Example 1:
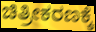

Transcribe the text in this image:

ಚಿತ್ರೀಕರಣಕ್ಕೆ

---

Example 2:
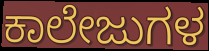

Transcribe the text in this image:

ಕಾಲೇಜುಗಳ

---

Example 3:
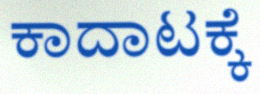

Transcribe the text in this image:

ಕಾದಾಟಕ್ಕೆ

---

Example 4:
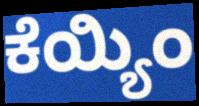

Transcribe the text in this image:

ಕೆಯ್ಯಿಂ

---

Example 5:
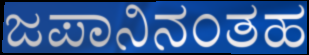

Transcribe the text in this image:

ಜಪಾನಿನಂತಹ